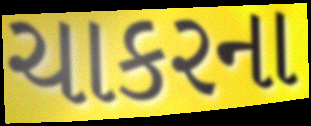
ચાકરના